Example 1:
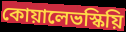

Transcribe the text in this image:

কোয়ালেভস্কিয়ি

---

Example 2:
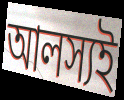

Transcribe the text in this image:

আলস্যই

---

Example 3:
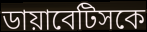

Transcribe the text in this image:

ডায়াবেটিসকে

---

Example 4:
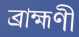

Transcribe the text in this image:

ব্রাহ্মণী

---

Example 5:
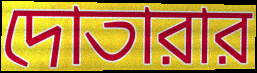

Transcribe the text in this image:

দোতারার